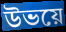
উভয়ে